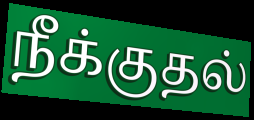
நீக்குதல்